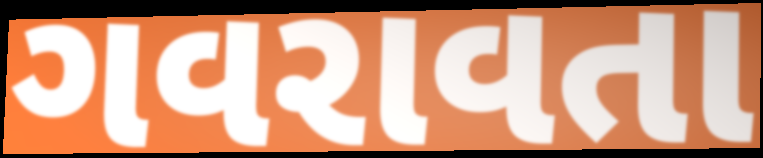
ગવરાવતા